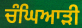
ਚੰਘਿਆੜੀ